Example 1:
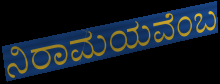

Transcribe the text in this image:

ನಿರಾಮಯವೆಂಬ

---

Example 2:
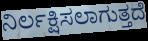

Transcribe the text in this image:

ನಿರ್ಲಕ್ಷಿಸಲಾಗುತ್ತದೆ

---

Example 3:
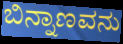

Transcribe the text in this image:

ಬಿನ್ನಾಣವನು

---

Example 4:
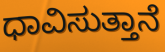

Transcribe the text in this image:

ಧಾವಿಸುತ್ತಾನೆ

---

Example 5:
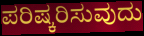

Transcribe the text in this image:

ಪರಿಷ್ಕರಿಸುವುದು